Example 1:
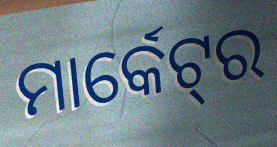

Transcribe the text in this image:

ମାର୍କେଟ୍‌ର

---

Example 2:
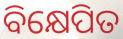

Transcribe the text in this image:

ବିକ୍ଷେପିତ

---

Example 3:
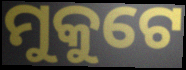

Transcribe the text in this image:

ମୁକୁଟେ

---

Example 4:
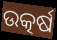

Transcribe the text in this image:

ଉତ୍କର୍ଷ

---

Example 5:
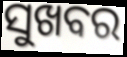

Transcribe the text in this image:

ସୁଖବର